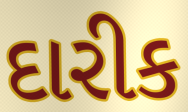
દારીક